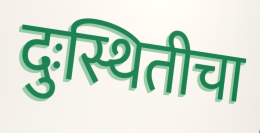
दुःस्थितीचा